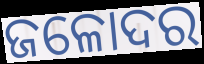
ଜଳୋଦର